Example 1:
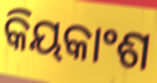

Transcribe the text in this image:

କିୟକାଂଶ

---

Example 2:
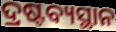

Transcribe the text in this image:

ଦ୍ରଷ୍ଟବ୍ୟସ୍ଥାନ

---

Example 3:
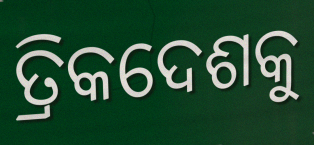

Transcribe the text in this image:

ତ୍ରିକଦେଶକୁ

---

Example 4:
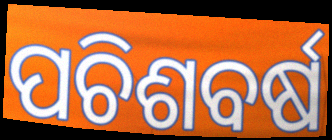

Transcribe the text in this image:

ପଚିଶବର୍ଷ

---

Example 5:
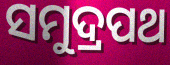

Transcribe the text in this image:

ସମୁଦ୍ରପଥ